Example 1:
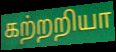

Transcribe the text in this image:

கற்றறியா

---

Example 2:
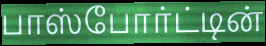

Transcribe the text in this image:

பாஸ்போர்ட்டின்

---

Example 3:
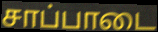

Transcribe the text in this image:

சாப்பாடை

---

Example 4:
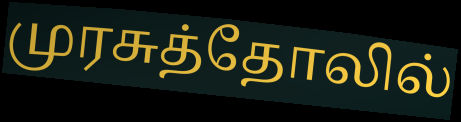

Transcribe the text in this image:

முரசுத்தோலில்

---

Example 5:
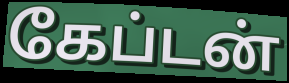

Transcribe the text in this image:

கேப்டன்